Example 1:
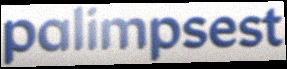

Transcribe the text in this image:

palimpsest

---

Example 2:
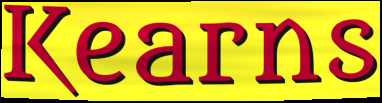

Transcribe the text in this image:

Kearns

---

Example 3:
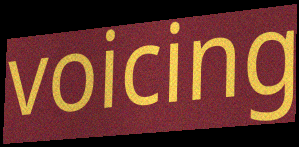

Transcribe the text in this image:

voicing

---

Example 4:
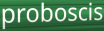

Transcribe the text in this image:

proboscis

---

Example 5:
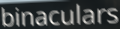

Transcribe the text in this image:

binaculars